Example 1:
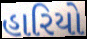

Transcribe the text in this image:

હારિયો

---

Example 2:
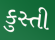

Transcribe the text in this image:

કુસ્તી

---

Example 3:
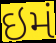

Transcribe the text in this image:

ઇમં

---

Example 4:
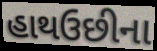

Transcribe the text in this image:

હાથઉછીના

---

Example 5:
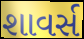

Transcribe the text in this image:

શાવર્સ